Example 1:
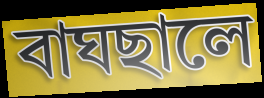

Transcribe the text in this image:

বাঘছালে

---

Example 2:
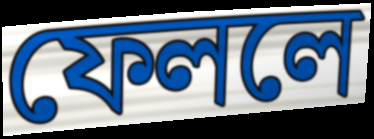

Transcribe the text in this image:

ফেললে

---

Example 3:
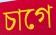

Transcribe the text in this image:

চাগে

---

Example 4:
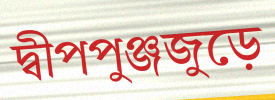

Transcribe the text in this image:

দ্বীপপুঞ্জজুড়ে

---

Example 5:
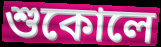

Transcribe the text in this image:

শুকোলে